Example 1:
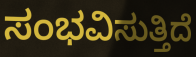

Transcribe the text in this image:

ಸಂಭವಿಸುತ್ತಿದೆ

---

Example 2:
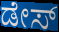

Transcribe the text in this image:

ಡೇಸ್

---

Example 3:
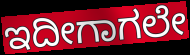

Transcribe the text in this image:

ಇದೀಗಾಗಲೇ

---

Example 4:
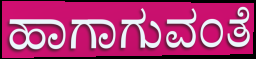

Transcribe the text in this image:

ಹಾಗಾಗುವಂತೆ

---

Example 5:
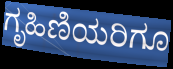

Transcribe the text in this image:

ಗೃಹಿಣಿಯರಿಗೂ